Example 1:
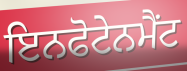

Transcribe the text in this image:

ਇਨਫੋਟੇਨਮੈਂਟ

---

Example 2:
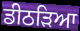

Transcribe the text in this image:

ਡੀਠੜਿਆ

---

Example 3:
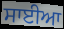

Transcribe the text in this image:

ਸਾਈਆ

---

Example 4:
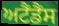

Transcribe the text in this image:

ਅਟੈਂਡੈਂਸ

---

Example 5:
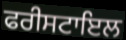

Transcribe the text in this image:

ਫਰੀਸਟਾਇਲ